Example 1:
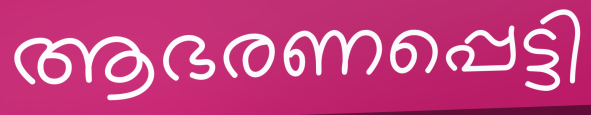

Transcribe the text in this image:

ആഭരണപ്പെട്ടി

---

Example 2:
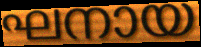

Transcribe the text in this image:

ഘനായ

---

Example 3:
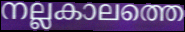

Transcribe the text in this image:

നല്ലകാലത്തെ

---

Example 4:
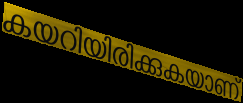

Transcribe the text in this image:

കയറിയിരിക്കുകയാണ്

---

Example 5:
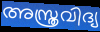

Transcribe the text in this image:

അസ്ത്രവിദ്യ